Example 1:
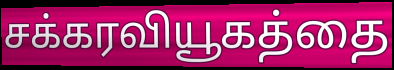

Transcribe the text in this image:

சக்கரவியூகத்தை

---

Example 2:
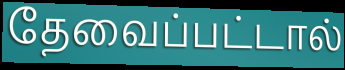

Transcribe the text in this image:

தேவைப்பட்டால்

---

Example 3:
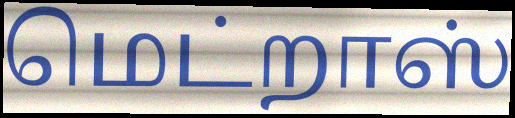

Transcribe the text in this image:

மெட்றாஸ்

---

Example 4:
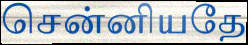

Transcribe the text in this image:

சென்னியதே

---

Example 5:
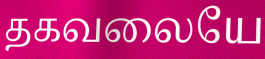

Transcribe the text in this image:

தகவலையே